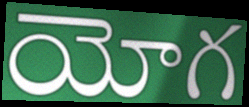
యోగ